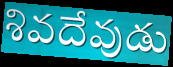
శివదేవుడు